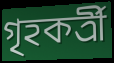
গৃহকর্ত্রী